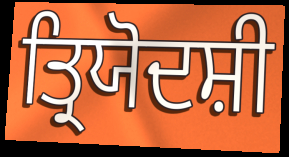
ਤ੍ਰਿਯੋਦਸ਼ੀ